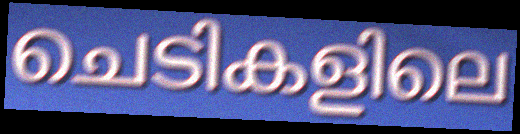
ചെടികളിലെ